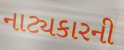
નાટ્યકારની